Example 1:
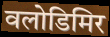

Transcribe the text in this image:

वलोडिमिर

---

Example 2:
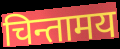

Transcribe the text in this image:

चिन्तामय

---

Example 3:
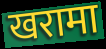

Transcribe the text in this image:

खरामा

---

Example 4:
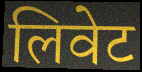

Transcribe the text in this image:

लिवेट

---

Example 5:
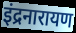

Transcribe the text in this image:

इंद्रनारायण